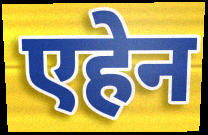
एहेन